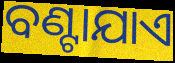
ବଣ୍ଟାଯାଏ